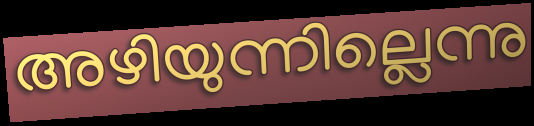
അഴിയുന്നില്ലെന്നു